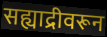
सह्याद्रीवरून